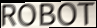
ROBOT